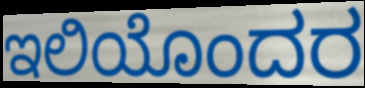
ಇಲಿಯೊಂದರ